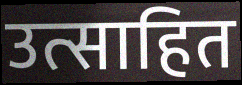
उत्साहित